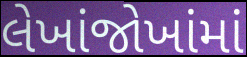
લેખાંજોખાંમાં